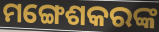
ମଙ୍ଗେଶକରଙ୍କ